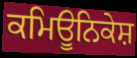
ਕਮਿਊਨਿਕੇਸ਼